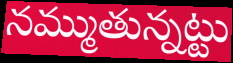
నమ్ముతున్నట్టు